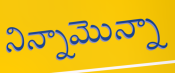
నిన్నామొన్నా